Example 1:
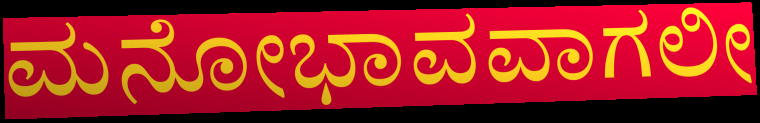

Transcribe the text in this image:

ಮನೋಭಾವವಾಗಲೀ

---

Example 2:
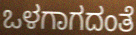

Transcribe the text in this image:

ಒಳಗಾಗದಂತೆ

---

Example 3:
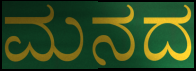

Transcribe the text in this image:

ಮನದ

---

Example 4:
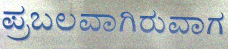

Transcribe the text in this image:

ಪ್ರಬಲವಾಗಿರುವಾಗ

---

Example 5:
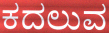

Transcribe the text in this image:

ಕದಲುವ